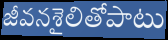
జీవనశైలితోపాటు